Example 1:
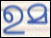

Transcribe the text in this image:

ഉമ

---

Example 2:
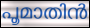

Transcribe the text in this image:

പൂമാതിൻ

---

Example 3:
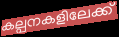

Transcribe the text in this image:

കല്പനകളിലേക്ക്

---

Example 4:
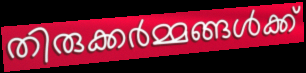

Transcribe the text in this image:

തിരുക്കർമ്മങ്ങൾക്ക്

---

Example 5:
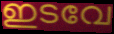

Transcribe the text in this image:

ഇടവേ